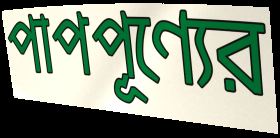
পাপপূণ্যের